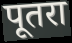
पूतरा